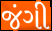
જંગી